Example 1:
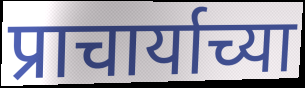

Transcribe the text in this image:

प्राचार्याच्या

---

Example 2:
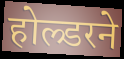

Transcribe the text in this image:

होल्डरने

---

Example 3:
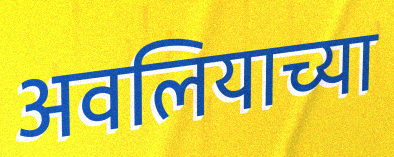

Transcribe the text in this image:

अवलियाच्या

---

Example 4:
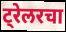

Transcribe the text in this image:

ट्रेलरचा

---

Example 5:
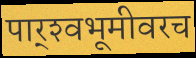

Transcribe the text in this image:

पार्श्वभूमीवरच